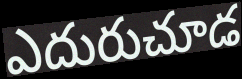
ఎదురుచూడ